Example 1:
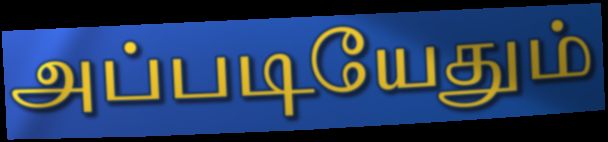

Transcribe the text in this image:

அப்படியேதும்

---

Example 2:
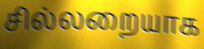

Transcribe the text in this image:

சில்லறையாக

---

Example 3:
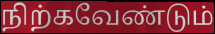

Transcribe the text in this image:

நிற்கவேண்டும்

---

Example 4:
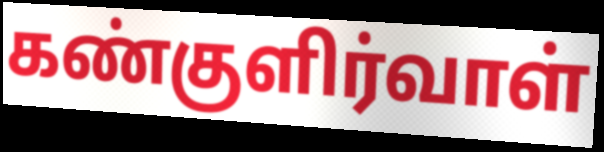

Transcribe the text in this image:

கண்குளிர்வாள்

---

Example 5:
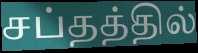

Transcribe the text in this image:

சப்தத்தில்